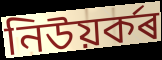
নিউয়ৰ্কৰ